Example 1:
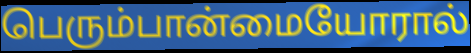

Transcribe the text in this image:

பெரும்பான்மையோரால்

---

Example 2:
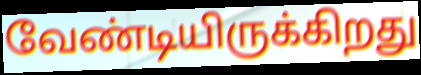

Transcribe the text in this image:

வேண்டியிருக்கிறது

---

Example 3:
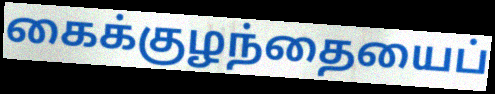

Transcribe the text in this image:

கைக்குழந்தையைப்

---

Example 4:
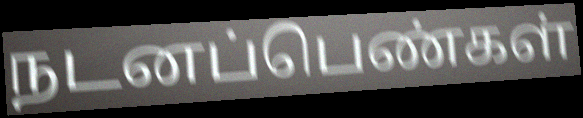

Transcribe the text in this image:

நடனப்பெண்கள்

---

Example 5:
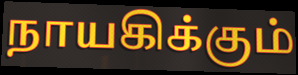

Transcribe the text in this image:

நாயகிக்கும்